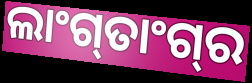
ଲାଂଗ୍‍ତାଂଗ୍‍ର